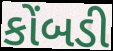
કોંબડી